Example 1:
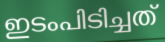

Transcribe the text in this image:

ഇടംപിടിച്ചത്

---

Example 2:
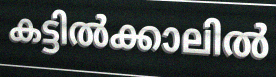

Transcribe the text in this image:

കട്ടിൽക്കാലിൽ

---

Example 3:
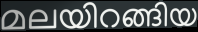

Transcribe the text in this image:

മലയിറങ്ങിയ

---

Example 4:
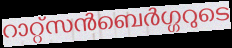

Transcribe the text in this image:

റാറ്റ്സൻബെർഗ്ഗറുടെ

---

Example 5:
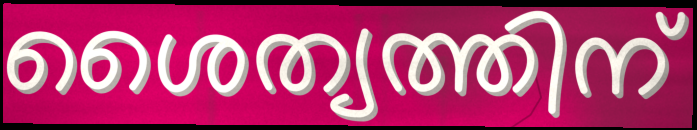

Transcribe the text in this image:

ശൈത്യത്തിന്